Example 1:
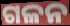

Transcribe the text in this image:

ଗଳନ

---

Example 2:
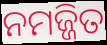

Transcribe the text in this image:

ନମଜ୍ଜିତ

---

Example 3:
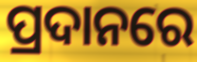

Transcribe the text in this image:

ପ୍ରଦାନରେ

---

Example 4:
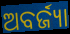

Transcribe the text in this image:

ଅବର୍ଜ୍ୟା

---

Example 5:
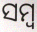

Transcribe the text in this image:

ସମ୍ବ